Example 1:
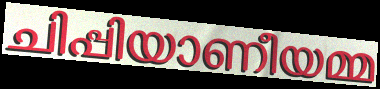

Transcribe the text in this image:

ചിപ്പിയാണീയമ്മ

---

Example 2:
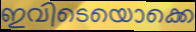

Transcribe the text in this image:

ഇവിടെയൊക്കെ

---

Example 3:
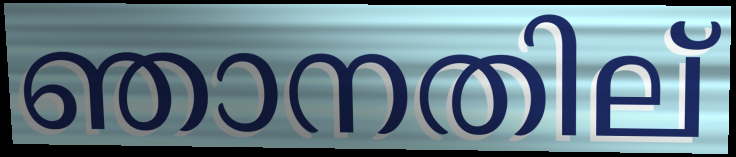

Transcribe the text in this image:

ഞാനതില്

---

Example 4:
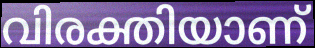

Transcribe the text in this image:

വിരക്തിയാണ്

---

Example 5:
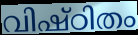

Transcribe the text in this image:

വിഷ്ഠിതം